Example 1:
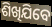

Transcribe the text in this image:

ଶିଖିଯିବେ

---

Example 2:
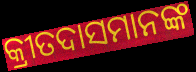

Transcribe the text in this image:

କ୍ରୀତଦାସମାନଙ୍କ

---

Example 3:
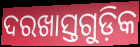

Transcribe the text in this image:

ଦରଖାସ୍ତଗୁଡ଼ିକ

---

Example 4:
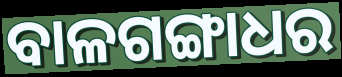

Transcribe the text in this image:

ବାଳଗଙ୍ଗାଧର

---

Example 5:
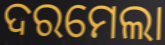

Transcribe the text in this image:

ଦରମେଲା